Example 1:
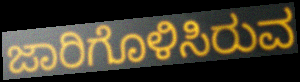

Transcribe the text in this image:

ಜಾರಿಗೊಳಿಸಿರುವ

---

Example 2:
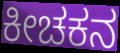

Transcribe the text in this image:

ಕೀಚಕನ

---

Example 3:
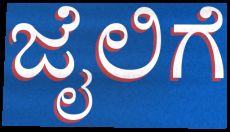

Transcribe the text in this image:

ಜೈಲಿಗೆ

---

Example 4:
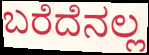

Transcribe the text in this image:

ಬರೆದೆನಲ್ಲ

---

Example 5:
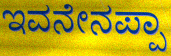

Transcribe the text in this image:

ಇವನೇನಪ್ಪಾ